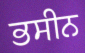
ਭਸੀਨ